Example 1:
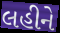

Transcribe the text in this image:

લહીને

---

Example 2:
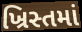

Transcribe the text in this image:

ખ્રિસ્તમાં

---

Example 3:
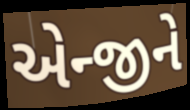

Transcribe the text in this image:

એન્જીને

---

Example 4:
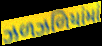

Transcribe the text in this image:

ઝળઝળિયાંમાં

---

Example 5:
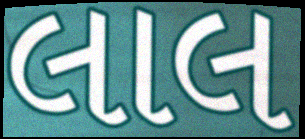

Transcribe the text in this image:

લાલ